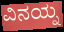
ವಿನಯ್ನ